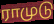
ராமுடு